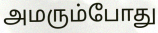
அமரும்போது